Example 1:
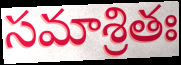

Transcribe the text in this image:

సమాశ్రితః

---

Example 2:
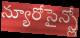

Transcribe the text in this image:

న్యూరోసైన్స్లో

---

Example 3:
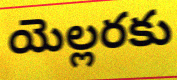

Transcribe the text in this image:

యెల్లరకు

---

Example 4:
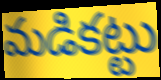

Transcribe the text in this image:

మడికట్టు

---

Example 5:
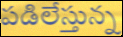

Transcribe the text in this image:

పడిలేస్తున్న